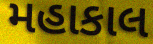
મહાકાલ